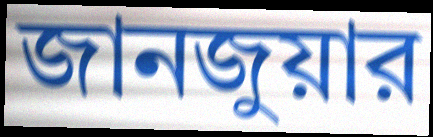
জানজুয়ার